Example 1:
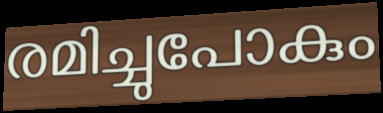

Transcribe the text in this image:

രമിച്ചുപോകും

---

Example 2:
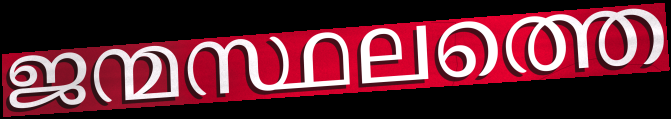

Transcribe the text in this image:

ജന്മസ്ഥലത്തെ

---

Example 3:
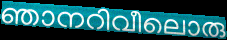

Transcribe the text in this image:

ഞാനറിവീലൊരു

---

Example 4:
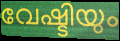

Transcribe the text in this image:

വേഷ്ടിയും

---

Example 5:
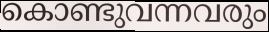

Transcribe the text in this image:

കൊണ്ടുവന്നവരും